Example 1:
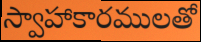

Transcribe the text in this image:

స్వాహాకారములతో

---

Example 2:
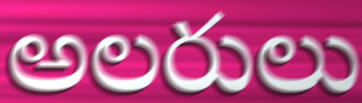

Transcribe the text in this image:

అలరులు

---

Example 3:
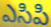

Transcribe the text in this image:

ఎసిపి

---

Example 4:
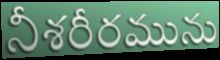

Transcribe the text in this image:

నీశరీరమును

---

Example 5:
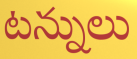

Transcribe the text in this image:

టన్నులు